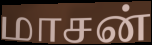
மாசன்